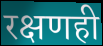
रक्षणही